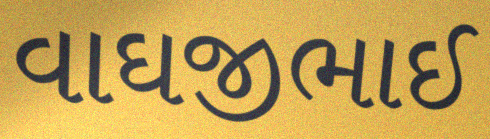
વાઘજીભાઈ